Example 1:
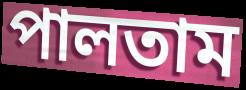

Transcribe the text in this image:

পালতাম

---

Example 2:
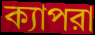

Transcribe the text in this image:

ক্যাপরা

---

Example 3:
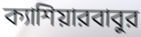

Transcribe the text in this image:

ক্যাশিয়ারবাবুর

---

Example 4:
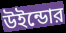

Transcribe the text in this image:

উইন্ডোর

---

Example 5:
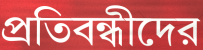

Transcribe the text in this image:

প্রতিবন্ধীদের